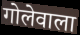
गोलेवाला